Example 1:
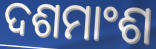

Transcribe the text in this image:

ଦଶମାଂଶ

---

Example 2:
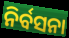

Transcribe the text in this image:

ନିର୍ବସନା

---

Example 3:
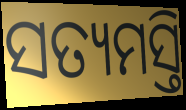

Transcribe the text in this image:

ସତ୍ୟମସ୍ତି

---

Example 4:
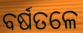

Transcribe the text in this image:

ବର୍ଷତଳେ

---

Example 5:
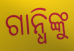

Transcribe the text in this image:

ଗାନ୍ଧିଙ୍କୁ